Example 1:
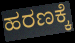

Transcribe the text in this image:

ಹರಣಕ್ಕೆ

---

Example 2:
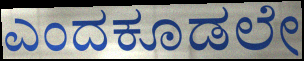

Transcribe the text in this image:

ಎಂದಕೂಡಲೇ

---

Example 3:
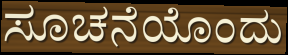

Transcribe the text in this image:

ಸೂಚನೆಯೊಂದು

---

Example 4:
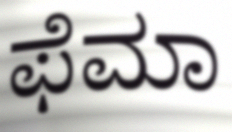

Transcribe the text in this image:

ಫೆಮಾ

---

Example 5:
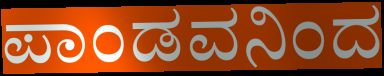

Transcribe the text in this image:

ಪಾಂಡವನಿಂದ